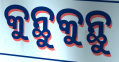
କୁନ୍ଥୁକୁନ୍ଥୁ